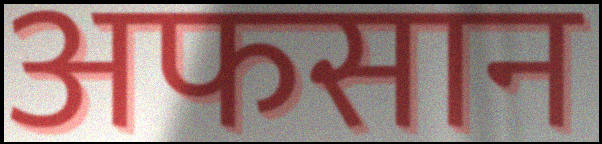
अफसान